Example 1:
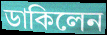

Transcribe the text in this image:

ডাকিলেন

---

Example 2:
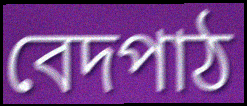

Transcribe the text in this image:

বেদপাঠ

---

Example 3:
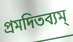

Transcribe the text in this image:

প্রমদিতব্যম্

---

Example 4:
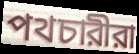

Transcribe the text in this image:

পথচারীরা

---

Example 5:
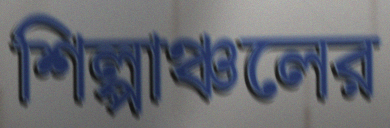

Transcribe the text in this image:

শিল্পাঞ্চলের